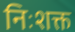
निःशक्त